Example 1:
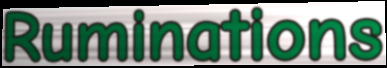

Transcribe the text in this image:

Ruminations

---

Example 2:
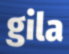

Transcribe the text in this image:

gila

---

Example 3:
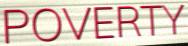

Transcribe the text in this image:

POVERTY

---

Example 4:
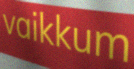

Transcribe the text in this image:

vaikkum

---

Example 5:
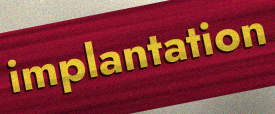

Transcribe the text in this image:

implantation